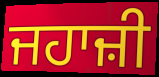
ਜਹਾਜ਼ੀ